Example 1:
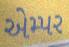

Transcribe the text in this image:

એમ્પર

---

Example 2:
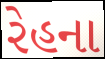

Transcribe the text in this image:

રેહના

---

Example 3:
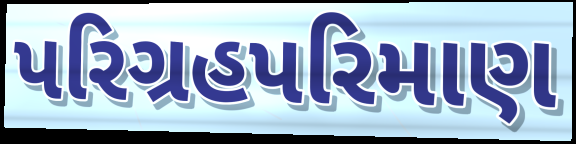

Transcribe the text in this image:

પરિગ્રહપરિમાણ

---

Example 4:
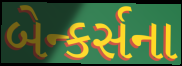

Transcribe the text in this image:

બેન્કર્સના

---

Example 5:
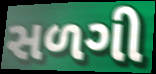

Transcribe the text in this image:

સળગી